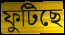
ফুটিছে